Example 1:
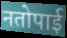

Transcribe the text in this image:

नतोपाई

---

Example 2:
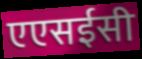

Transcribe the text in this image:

एएसईसी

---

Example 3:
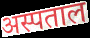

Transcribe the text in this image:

अस्पताल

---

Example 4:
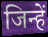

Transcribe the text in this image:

जिन्हें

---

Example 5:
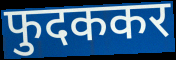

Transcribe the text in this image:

फुदककर